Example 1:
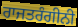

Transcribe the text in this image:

ਰਾਜਤਰੰਗੀਨੀ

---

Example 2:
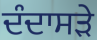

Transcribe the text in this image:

ਦੰਦਾਸੜੇ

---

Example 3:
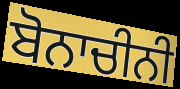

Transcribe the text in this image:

ਬੋਨਾਚੀਨੀ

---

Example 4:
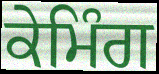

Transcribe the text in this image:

ਕੇਮਿੰਗ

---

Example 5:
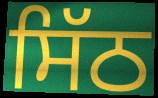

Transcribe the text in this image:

ਸਿੱਠ